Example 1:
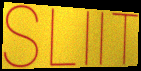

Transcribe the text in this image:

SLIIT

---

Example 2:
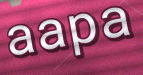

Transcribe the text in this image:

aapa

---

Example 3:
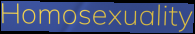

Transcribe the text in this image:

Homosexuality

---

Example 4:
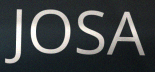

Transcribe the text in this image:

JOSA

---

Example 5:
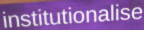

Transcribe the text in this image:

institutionalise